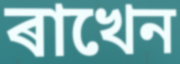
ৰাখেন